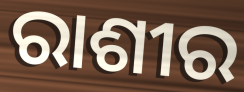
ରାଶୀର